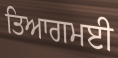
ਤਿਆਗਮਈ